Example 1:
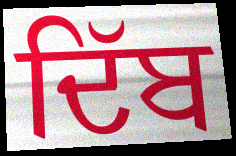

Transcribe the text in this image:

ਦਿੱਬ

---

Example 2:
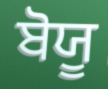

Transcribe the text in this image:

ਬੋਯੂ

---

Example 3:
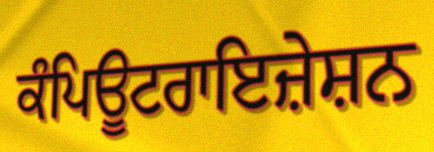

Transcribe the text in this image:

ਕੰਪਿਊਟਰਾਇਜ਼ੇਸ਼ਨ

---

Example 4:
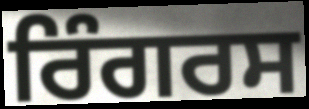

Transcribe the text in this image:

ਰਿੰਗਰਸ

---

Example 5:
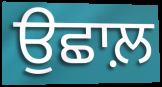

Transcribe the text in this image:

ਉਛਾਲ਼